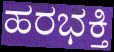
ಹರಭಕ್ತಿ